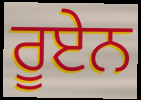
ਰੂਏਨ